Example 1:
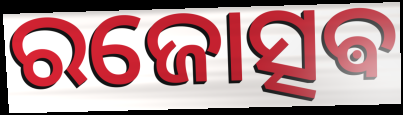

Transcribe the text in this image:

ରଜୋତ୍ସଵ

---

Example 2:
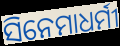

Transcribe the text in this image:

ସିନେମାଧର୍ମୀ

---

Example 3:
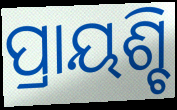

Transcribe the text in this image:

ପ୍ରାୟଶ୍ଚି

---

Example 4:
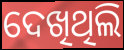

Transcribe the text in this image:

ଦେଖିଥିଲି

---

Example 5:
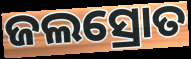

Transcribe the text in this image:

ଜଲସ୍ରୋତ